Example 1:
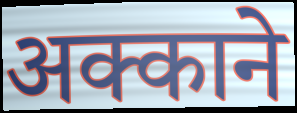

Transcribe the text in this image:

अक्काने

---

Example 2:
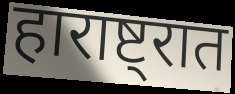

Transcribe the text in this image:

हाराष्ट्रात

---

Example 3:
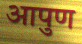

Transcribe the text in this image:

आपुण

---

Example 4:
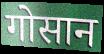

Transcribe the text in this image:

गोसान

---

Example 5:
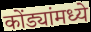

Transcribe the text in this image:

कोंड्यांमध्ये